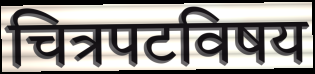
चित्रपटविषय